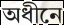
অধীনে